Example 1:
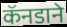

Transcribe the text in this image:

कॅनडाने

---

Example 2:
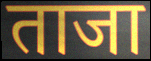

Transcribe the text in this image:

ताजा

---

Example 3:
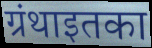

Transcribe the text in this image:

ग्रंथाइतका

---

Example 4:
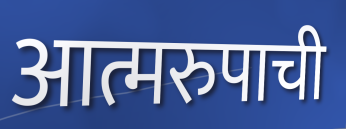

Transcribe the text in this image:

आत्मरुपाची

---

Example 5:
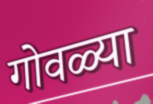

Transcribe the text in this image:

गोवळ्या